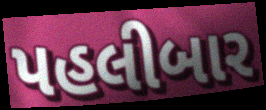
પહલીબાર